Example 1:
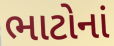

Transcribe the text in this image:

ભાટોનાં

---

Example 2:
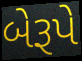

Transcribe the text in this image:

બેરૂપે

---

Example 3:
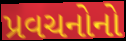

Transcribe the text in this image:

પ્રવચનોનો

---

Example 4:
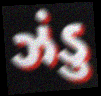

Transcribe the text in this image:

ઝંડુ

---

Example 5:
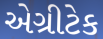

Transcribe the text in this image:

એગ્રીટેક